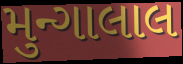
મુન્ગાલાલ